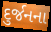
દુર્જનના